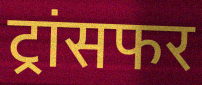
ट्रांसफर